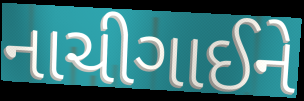
નાચીગાઈને